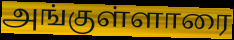
அங்குள்ளாரை